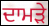
ਦਾਮੜੇ